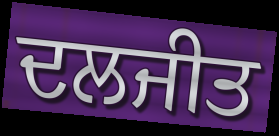
ਦਲਜੀਤ